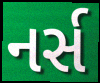
નર્સ